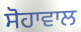
ਸੋਹਾਵਾਲ